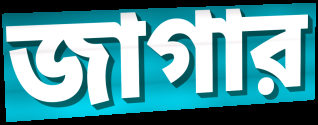
জাগার